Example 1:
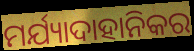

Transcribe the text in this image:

ମର୍ଯ୍ୟାଦାହାନିକର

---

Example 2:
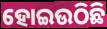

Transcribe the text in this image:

ହୋଇଉଠିଛି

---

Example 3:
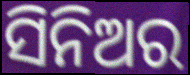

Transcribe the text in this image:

ସିନିଅର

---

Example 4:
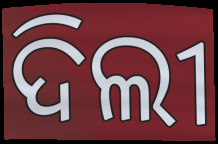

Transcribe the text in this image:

ଦିଲୀ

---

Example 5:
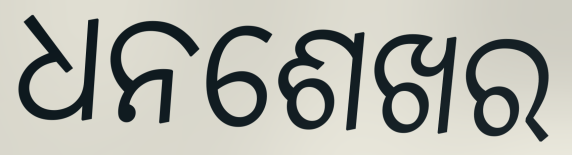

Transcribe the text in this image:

ଧନଶେଖର